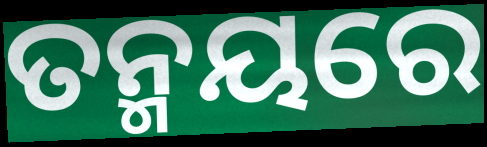
ତନ୍ମୟରେ